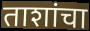
ताशांचा